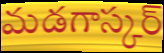
మడగాస్కర్